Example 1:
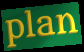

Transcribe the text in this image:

plan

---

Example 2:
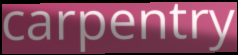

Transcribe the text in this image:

carpentry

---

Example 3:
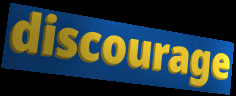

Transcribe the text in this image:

discourage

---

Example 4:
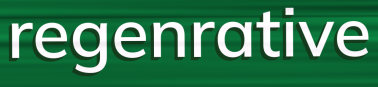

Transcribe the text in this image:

regenrative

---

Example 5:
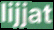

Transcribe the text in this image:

lijjat